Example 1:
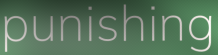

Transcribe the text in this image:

punishing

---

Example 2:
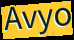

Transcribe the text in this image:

Avyo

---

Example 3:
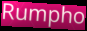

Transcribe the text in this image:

Rumpho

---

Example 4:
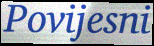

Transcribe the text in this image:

Povijesni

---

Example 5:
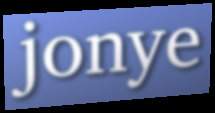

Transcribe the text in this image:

jonye